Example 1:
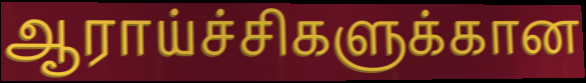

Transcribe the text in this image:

ஆராய்ச்சிகளுக்கான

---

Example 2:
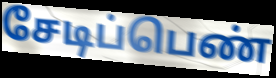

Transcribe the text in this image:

சேடிப்பெண்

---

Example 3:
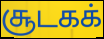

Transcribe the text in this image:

சூடகக்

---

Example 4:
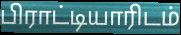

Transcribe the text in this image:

பிராட்டியாரிடம்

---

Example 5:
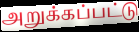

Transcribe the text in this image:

அறுக்கப்பட்டு